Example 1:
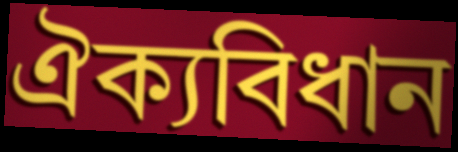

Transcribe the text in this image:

ঐক্যবিধান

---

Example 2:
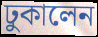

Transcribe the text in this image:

ঢুকালেন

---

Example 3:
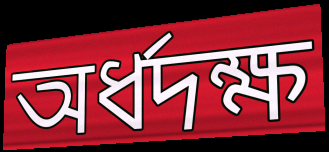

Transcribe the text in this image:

অর্ধদক্ষ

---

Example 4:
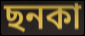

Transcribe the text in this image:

ছনকা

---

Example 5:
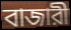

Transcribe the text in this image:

বাজারী